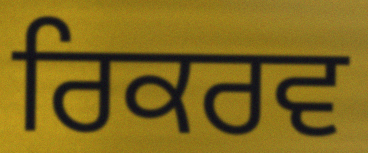
ਰਿਕਰਵ